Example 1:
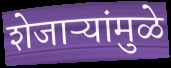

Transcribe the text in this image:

शेजाऱ्यांमुळे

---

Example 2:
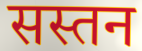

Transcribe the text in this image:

सस्तन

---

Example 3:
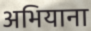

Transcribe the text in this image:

अभियाना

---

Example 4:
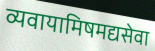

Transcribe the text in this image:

व्यवायामिषमद्यसेवा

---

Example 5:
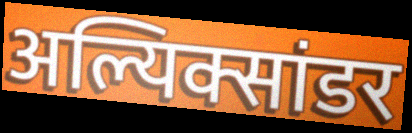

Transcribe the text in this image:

अल्यिक्सांडर